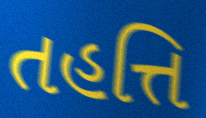
તહત્તિ